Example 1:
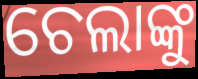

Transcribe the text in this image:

ଚେଲାଙ୍କୁ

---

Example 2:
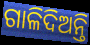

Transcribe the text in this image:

ଗାଳିଦିଅନ୍ତି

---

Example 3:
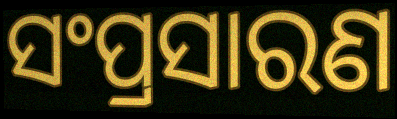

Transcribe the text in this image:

ସଂପ୍ରସାରଣ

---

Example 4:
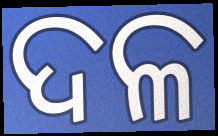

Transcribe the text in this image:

ଦଳ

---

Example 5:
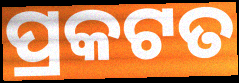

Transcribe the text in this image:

ପ୍ରକଟତ